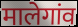
मालेगांव